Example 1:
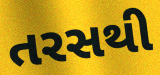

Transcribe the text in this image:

તરસથી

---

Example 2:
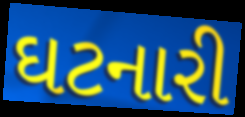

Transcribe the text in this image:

ઘટનારી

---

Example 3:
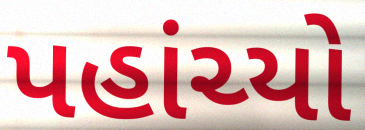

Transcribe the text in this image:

પહાંચ્યો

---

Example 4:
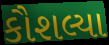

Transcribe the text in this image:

કૌશલ્યા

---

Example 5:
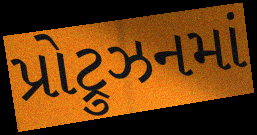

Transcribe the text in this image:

પ્રોટ્રુઝનમાં